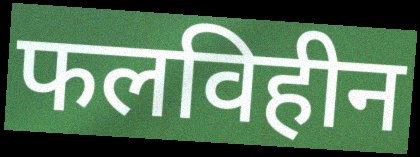
फलविहीन